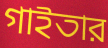
গাইতার